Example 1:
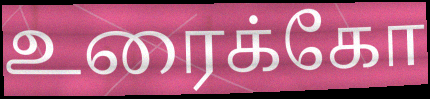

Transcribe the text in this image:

உரைக்கோ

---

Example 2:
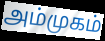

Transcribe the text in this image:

அம்முகம்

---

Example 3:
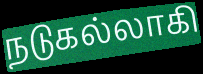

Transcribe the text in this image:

நடுகல்லாகி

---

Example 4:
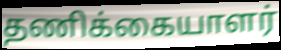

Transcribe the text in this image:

தணிக்கையாளர்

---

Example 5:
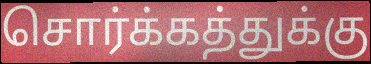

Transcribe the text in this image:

சொர்க்கத்துக்கு